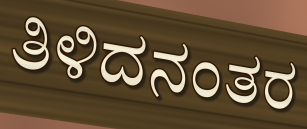
ತಿಳಿದನಂತರ